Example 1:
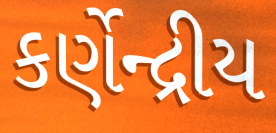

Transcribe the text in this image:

કર્ણેન્દ્રીય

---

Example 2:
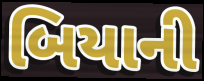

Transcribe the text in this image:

બિયાની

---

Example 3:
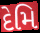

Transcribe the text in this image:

દેમિ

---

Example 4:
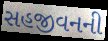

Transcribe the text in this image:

સહજીવનની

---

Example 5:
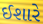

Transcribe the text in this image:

ઈશારે